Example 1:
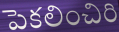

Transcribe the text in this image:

పెకలించిరి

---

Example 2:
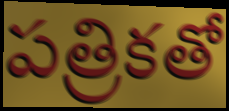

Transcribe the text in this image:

పత్రికతో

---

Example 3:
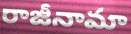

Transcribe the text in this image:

రాజీనామా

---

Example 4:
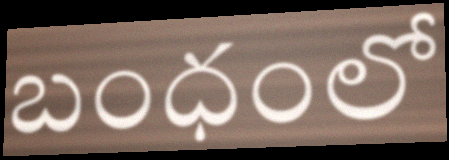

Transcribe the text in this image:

బంధంలో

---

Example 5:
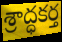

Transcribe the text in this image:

శ్రాద్ధకర్త